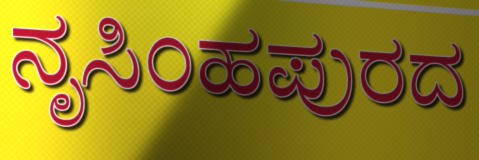
ನೃಸಿಂಹಪುರದ